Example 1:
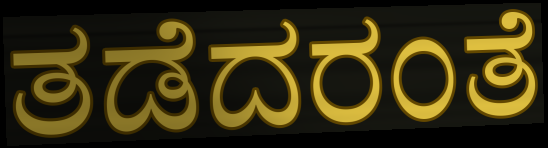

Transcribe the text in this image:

ತಡೆದರಂತೆ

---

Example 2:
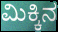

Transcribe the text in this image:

ಮಿಕ್ಕಿನ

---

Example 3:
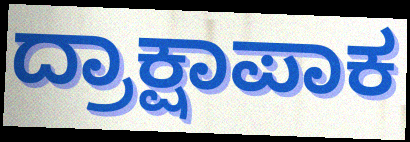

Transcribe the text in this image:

ದ್ರಾಕ್ಷಾಪಾಕ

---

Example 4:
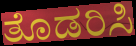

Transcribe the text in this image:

ತೊಡರಿಸಿ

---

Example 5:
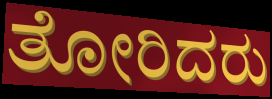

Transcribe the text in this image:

ತೋರಿದರು